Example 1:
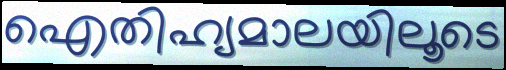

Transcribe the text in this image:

ഐതിഹ്യമാലയിലൂടെ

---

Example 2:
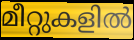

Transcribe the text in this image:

മീറ്റുകളിൽ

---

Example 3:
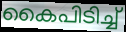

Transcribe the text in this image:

കൈപിടിച്ച്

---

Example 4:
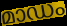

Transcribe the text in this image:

മാഡം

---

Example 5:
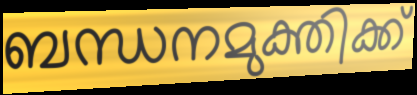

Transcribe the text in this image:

ബന്ധനമുക്തിക്ക്